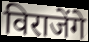
विराजेंगे